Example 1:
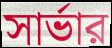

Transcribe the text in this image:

সার্ভার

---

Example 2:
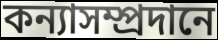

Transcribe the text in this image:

কন্যাসম্প্রদানে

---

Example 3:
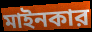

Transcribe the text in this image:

মাইনকার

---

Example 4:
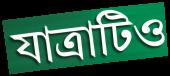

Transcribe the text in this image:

যাত্রাটিও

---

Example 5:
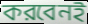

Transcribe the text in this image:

করবেনই